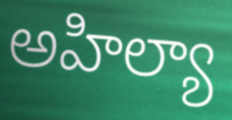
అహిల్యా